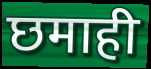
छमाही